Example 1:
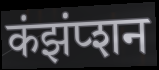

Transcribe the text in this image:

कंझंप्शन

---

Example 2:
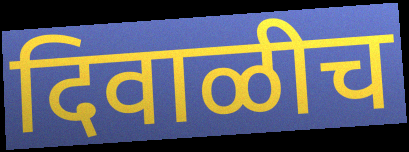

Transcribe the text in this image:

दिवाळीच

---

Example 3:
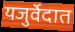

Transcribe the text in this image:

यजुर्वेदात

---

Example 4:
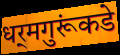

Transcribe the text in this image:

धर्मगुरूंकडे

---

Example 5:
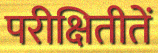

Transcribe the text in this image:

परीक्षितीतें